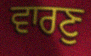
ਵਾਰਣੁ